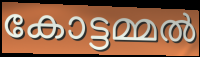
കോട്ടമ്മൽ